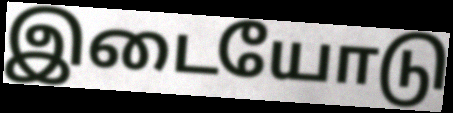
இடையோடு